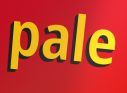
pale